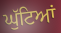
ਘੁੱਟਿਆਂ